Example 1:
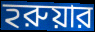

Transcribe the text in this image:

হরুয়ার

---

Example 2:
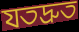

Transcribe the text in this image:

যতদ্রুত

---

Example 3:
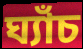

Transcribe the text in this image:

ঘ্যাঁচ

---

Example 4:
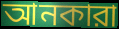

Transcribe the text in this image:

আনকারা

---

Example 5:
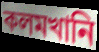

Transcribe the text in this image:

কলমখানি